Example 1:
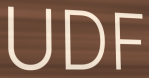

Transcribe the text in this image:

UDF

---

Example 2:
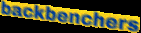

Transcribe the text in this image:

backbenchers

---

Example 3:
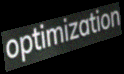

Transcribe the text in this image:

optimization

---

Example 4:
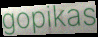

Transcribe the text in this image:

gopikas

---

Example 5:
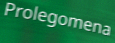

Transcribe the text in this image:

Prolegomena